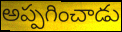
అప్పగించాడు